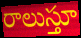
రాలుస్తూ